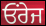
ਓਂਰੇਜ